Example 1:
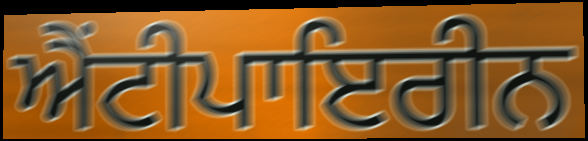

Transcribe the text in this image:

ਐਂਟੀਪਾਇਰੀਨ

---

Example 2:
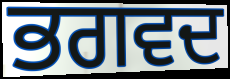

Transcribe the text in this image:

ਭਗਵਦ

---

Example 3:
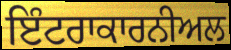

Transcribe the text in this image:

ਇੰਟਰਾਕਾਰਨੀਅਲ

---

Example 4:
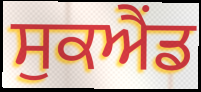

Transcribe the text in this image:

ਸੁਕਐਂਡ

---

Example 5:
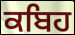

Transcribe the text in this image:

ਕਬਿਹ